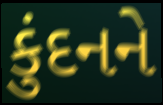
કુંદનને